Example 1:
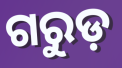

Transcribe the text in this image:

ଗରୁଡ଼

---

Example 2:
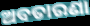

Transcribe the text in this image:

ଅବତାରଣା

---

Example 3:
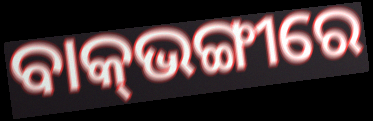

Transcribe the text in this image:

ବାକ୍‍ଭଙ୍ଗୀରେ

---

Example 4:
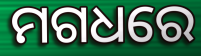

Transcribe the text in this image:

ମଗଧରେ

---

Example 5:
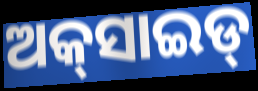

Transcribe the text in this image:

ଅକ୍‌ସାଇଡ୍